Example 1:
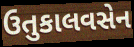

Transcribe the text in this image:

ઉતુકાલવસેન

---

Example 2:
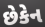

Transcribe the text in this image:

છેકેન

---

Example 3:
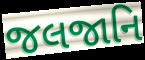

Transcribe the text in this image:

જલજાનિ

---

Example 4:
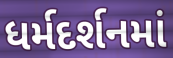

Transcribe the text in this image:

ધર્મદર્શનમાં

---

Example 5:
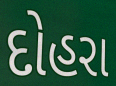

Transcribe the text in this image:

દોહરા